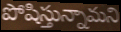
పోషిస్తున్నామని